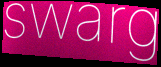
swarg